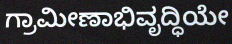
ಗ್ರಾಮೀಣಾಭಿವೃದ್ಧಿಯೇ